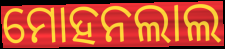
ମୋହନଲାଲ